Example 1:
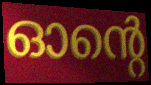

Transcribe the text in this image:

ഓന്റെ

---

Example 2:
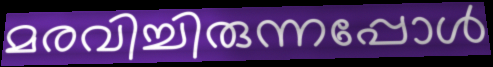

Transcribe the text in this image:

മരവിച്ചിരുന്നപ്പോൾ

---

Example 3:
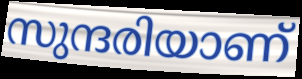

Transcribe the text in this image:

സുന്ദരിയാണ്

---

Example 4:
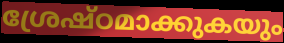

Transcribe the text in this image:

ശ്രേഷ്ഠമാക്കുകയും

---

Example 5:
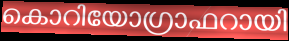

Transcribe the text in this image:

കൊറിയോഗ്രാഫറായി